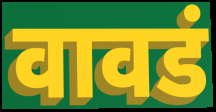
वावडं